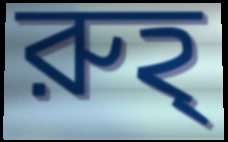
রুহ্